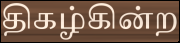
திகழ்கின்ற